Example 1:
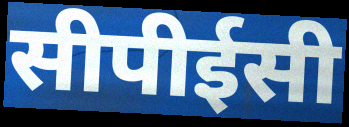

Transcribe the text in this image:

सीपीईसी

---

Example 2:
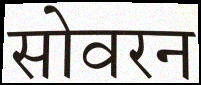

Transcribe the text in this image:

सोवरन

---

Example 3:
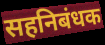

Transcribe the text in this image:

सहनिबंधक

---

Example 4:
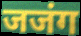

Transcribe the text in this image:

जजंग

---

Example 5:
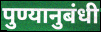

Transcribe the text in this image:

पुण्यानुबंधी